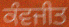
ਕੰਵਜੀਤ